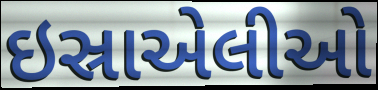
ઇસ્રાએલીઓ